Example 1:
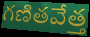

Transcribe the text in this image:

గణితవేత్త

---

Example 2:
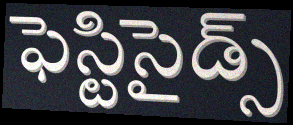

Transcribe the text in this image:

ఫెస్టిసైడ్స్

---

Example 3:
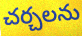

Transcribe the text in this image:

చర్చలను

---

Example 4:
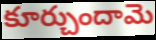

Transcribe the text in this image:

కూర్చుందామె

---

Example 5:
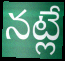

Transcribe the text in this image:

నట్లే